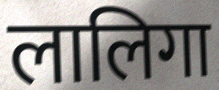
लालिगा